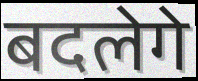
बदलेगे